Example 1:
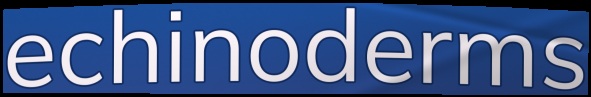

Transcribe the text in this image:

echinoderms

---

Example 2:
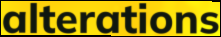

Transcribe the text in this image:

alterations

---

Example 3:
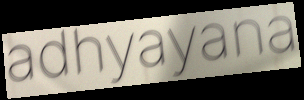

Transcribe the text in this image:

adhyayana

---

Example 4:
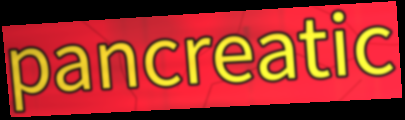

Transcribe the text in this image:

pancreatic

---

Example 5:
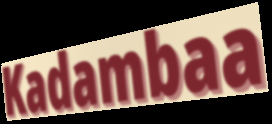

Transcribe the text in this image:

Kadambaa